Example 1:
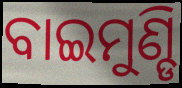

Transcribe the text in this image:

ବାଇମୁଣ୍ଡି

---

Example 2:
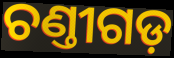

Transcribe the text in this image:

ଚଣ୍ତୀଗଡ଼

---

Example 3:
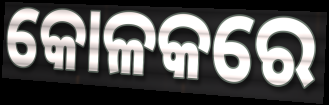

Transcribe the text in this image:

କୋଳକରେ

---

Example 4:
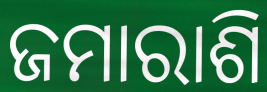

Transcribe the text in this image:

ଜମାରାଶି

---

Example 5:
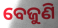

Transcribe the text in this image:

ବେଜୁଣି